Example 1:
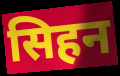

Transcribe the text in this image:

सिहन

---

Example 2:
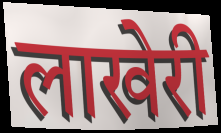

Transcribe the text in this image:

लाखेरी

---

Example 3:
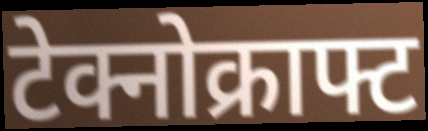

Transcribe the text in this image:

टेक्नोक्राफ्ट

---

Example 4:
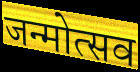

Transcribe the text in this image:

जन्मोत्सव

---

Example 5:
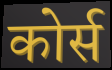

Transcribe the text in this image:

कोर्स